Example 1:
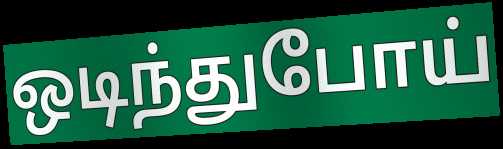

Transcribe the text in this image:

ஒடிந்துபோய்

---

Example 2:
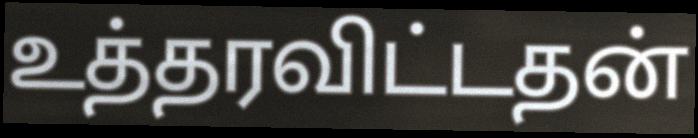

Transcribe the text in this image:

உத்தரவிட்டதன்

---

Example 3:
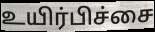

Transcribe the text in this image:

உயிர்பிச்சை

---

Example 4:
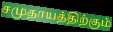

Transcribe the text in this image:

சமுதாயத்திற்கும்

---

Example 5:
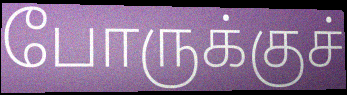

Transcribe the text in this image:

போருக்குச்